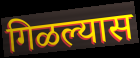
गिळल्यास